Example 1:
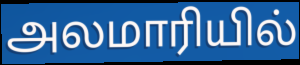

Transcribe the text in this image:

அலமாரியில்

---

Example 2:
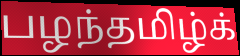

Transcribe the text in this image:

பழந்தமிழ்க்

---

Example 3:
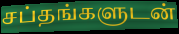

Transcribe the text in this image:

சப்தங்களுடன்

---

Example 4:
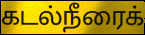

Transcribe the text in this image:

கடல்நீரைக்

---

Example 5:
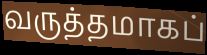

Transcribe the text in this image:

வருத்தமாகப்